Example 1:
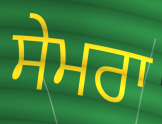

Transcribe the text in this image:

ਸੇਮਰਾ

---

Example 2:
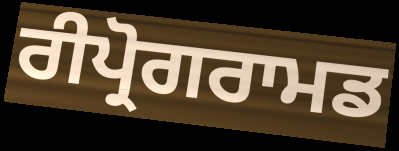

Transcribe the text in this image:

ਰੀਪ੍ਰੋਗਰਾਮਡ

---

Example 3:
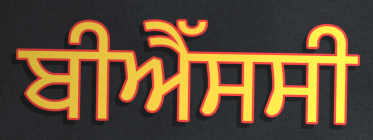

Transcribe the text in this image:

ਬੀਐੱਸਸੀ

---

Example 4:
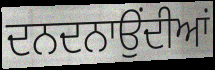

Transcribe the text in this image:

ਦਨਦਨਾਉਂਦੀਆਂ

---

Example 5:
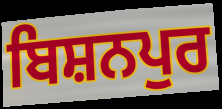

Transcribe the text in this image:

ਬਿਸ਼ਨਪੁਰ